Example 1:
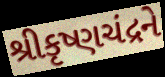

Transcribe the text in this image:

શ્રીકૃષ્ણચંદ્રને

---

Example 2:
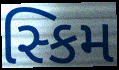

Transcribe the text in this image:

સ્કિમ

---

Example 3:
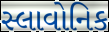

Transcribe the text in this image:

સ્લાવોનિક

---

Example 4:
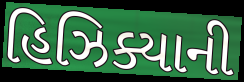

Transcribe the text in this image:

હિઝિક્યાની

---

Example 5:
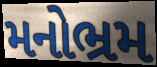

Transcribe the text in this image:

મનોભ્રમ